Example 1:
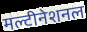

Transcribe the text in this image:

मल्टीनेशनल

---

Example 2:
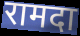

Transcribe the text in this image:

रामदा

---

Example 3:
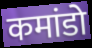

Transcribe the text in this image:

कमांडो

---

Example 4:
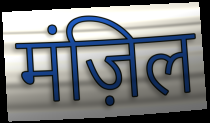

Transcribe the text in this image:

मंज़िल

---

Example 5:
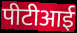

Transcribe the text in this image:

पीटीआई